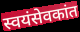
स्वयंसेवकांत